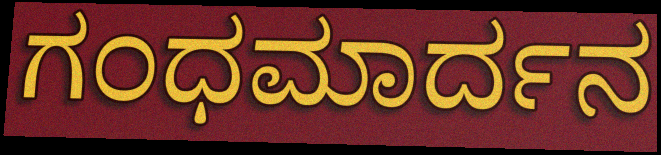
ಗಂಧಮಾರ್ದನ